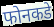
फोनकडे